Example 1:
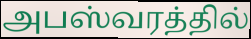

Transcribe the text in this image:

அபஸ்வரத்தில்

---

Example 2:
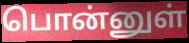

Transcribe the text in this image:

பொன்னுள்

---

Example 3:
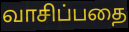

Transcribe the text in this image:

வாசிப்பதை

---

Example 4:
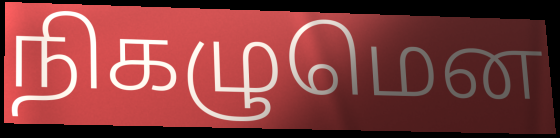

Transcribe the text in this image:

நிகழுமென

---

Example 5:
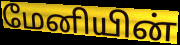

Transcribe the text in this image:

மேனியின்